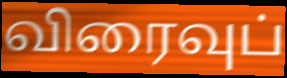
விரைவுப்